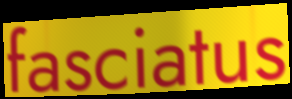
fasciatus